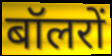
बॉलरों